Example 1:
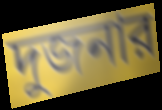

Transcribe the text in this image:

দুজনার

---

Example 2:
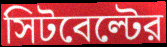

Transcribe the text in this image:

সিটবেল্টের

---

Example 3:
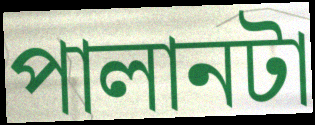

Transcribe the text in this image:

পালানটা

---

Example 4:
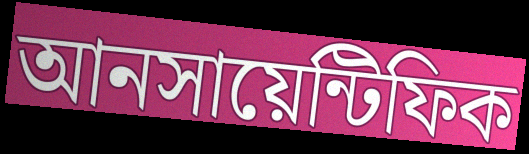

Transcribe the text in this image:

আনসায়েন্টিফিক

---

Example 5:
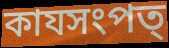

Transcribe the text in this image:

কাযসংপত্